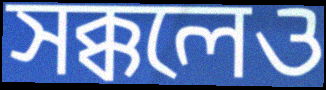
সক্কলেও